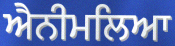
ਐਨੀਮਲਿਆ